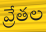
వ్రేతల